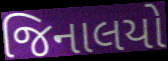
જિનાલયો